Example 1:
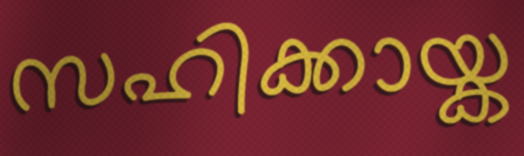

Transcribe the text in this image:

സഹിക്കായ്ക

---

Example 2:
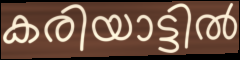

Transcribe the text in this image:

കരിയാട്ടിൽ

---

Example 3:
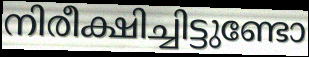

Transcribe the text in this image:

നിരീക്ഷിച്ചിട്ടുണ്ടോ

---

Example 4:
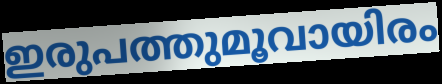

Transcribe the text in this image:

ഇരുപത്തുമൂവായിരം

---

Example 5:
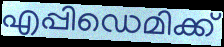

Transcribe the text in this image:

എപ്പിഡെമിക്ക്